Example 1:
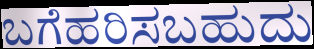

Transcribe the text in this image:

ಬಗೆಹರಿಸಬಹುದು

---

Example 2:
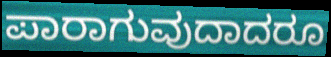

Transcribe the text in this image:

ಪಾರಾಗುವುದಾದರೂ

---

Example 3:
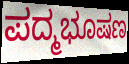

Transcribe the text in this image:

ಪದ್ಮಭೂಷಣ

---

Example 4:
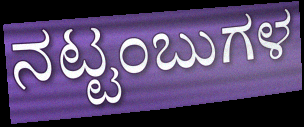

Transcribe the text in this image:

ನಟ್ಟಂಬುಗಳ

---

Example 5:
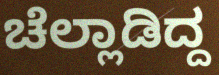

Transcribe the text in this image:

ಚೆಲ್ಲಾಡಿದ್ದ